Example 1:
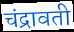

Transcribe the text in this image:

चंद्रावती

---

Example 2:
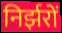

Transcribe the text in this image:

निर्झरों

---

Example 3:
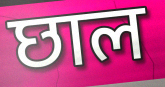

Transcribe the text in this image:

छाल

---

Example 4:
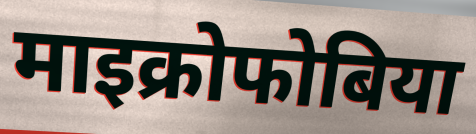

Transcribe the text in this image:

माइक्रोफोबिया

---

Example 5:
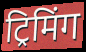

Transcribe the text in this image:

ट्रिमिंग